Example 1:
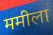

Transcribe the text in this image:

ममीला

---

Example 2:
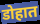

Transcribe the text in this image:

डोहात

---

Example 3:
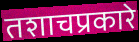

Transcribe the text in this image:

तशाचप्रकारे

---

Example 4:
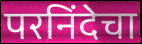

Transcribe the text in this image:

परनिंदेचा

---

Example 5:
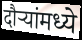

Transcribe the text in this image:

दौऱ्यांमध्ये